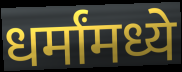
धर्मांमध्ये